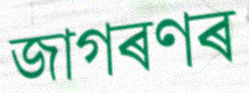
জাগৰণৰ